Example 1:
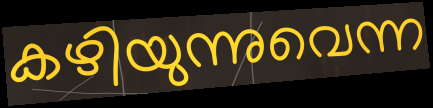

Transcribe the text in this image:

കഴിയുന്നുവെന്ന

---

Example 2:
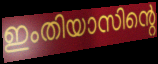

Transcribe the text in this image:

ഇംതിയാസിന്റെ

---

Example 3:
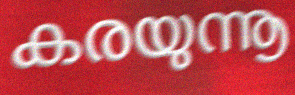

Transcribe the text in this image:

കരയുന്നൂ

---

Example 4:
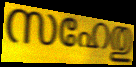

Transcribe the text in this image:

സഹേതു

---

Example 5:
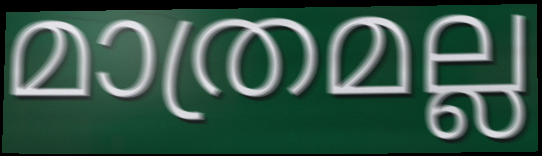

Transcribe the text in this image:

മാത്രമല്ല